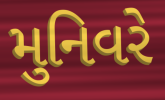
મુનિવરે